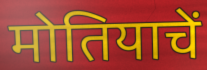
मोतियाचें